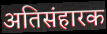
अतिसंहारक